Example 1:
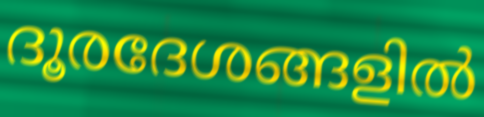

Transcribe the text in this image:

ദൂരദേശങ്ങളിൽ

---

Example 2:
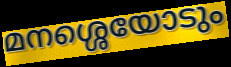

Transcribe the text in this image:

മനശ്ശെയോടും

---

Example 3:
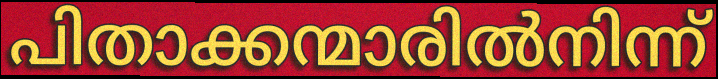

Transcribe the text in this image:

പിതാക്കന്മാരിൽനിന്ന്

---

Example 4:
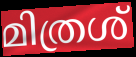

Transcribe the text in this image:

മിത്രശ്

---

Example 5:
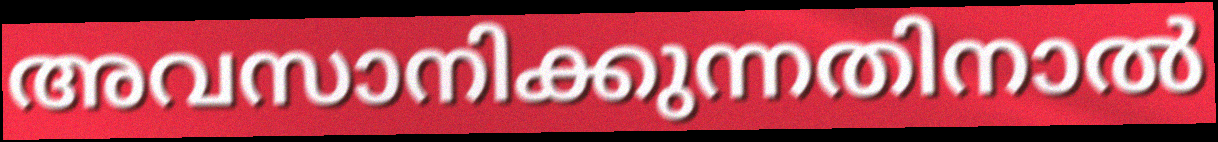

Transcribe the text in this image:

അവസാനിക്കുന്നതിനാൽ